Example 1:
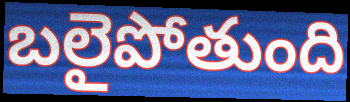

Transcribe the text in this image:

బలైపోతుంది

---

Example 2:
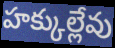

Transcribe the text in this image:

హక్కుల్లేవు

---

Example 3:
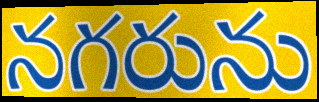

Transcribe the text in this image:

నగరును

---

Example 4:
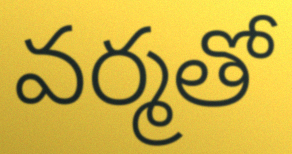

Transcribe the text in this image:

వర్మతో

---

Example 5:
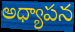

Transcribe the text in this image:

అధ్యాపన